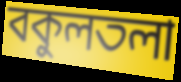
বকুলতলা